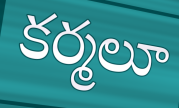
కర్మలూ